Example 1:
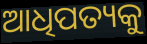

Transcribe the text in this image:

ଆଧିପତ୍ୟକୁ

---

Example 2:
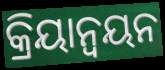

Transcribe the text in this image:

କ୍ରିୟାନ୍ଵୟନ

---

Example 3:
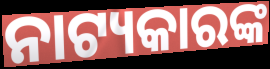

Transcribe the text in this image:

ନାଟ୍ୟକାରଙ୍କ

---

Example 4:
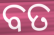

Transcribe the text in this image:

ବତ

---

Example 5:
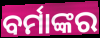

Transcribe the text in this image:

ବର୍ମାଙ୍କର